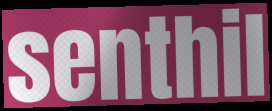
senthil